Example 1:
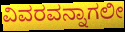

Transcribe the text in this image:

ವಿವರವನ್ನಾಗಲೀ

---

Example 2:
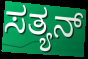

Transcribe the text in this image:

ಸತ್ಯನ್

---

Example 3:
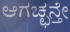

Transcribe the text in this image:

ಆಗಚ್ಛನ್ತೇ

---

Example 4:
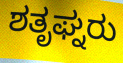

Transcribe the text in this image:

ಶತೃಘ್ನರು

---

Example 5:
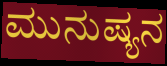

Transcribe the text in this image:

ಮುನುಷ್ಯನ